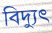
বিদ্যুৎ